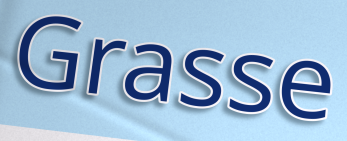
Grasse